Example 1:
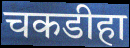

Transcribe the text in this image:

चकडीहा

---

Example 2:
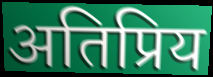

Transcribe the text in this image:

अतिप्रिय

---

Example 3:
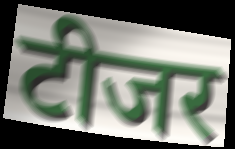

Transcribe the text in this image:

टीजर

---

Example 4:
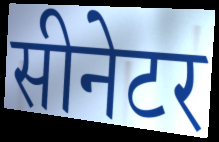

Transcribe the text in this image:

सीनेटर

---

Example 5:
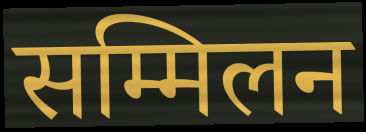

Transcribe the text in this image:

सम्मिलन